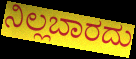
ನಿಲ್ಲಬಾರದು